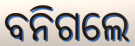
ବନିଗଲେ